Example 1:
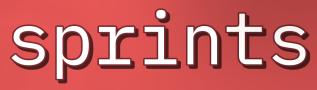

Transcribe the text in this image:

sprints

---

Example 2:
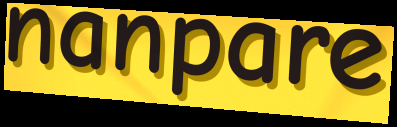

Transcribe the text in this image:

nanpare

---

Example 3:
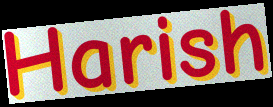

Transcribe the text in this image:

Harish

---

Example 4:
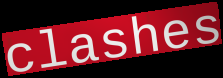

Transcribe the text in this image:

clashes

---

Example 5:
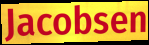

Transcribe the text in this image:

Jacobsen